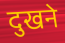
दुखने